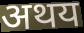
अथय